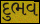
દુભવ